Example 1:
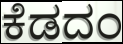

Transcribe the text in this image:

ಕೆಡದಂ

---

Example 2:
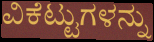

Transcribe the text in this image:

ವಿಕೆಟ್ಟುಗಳನ್ನು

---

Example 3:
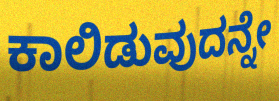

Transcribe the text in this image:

ಕಾಲಿಡುವುದನ್ನೇ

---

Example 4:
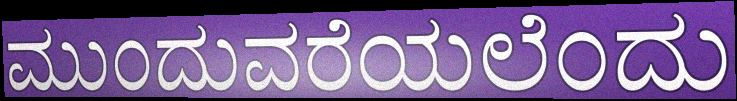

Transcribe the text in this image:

ಮುಂದುವರೆಯಲೆಂದು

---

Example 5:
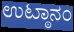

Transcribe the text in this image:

ಉಟ್ಠಾನಂ